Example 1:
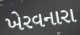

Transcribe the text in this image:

ખેરવનારા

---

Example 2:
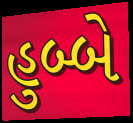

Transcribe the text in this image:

હુબ્બે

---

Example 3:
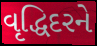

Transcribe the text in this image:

વૃદ્ધિદરને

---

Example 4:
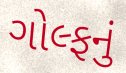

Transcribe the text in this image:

ગોલ્ફનું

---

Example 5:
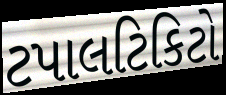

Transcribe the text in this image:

ટપાલટિકિટો